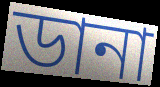
ডানা